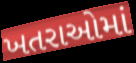
ખતરાઓમાં